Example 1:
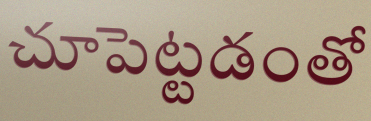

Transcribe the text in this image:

చూపెట్టడంతో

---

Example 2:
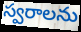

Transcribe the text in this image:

స్వరాలను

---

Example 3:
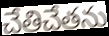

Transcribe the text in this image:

చేతిచేతను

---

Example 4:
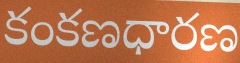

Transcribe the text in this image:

కంకణధారణ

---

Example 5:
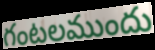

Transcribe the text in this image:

గంటలముందు